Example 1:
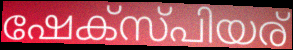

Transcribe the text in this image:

ഷേക്സ്പിയര്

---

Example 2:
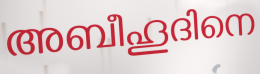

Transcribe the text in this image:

അബീഹൂദിനെ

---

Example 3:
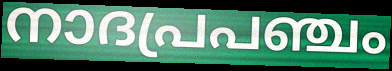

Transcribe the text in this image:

നാദപ്രപഞ്ചം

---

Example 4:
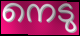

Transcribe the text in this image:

നെടു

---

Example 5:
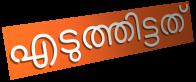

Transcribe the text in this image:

എടുത്തിട്ടത്